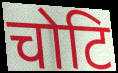
चोटि